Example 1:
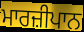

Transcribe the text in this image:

ਮਾਰਜ਼ੀਪਾਨ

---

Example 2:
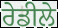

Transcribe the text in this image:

ਰੇਡੀਲੇ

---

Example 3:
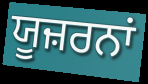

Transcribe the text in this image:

ਯੂਜ਼ਰਨਾਂ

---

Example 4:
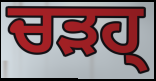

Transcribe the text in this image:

ਚੜਹ੍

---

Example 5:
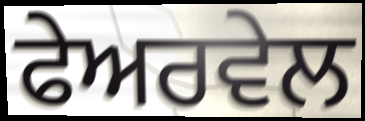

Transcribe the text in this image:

ਫੇਅਰਵੇਲ